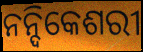
ନନ୍ଦିକେଶରୀ